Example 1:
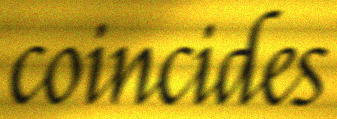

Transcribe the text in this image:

coincides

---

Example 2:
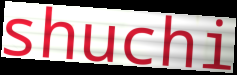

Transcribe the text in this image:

shuchi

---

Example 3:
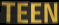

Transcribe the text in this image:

TEEN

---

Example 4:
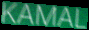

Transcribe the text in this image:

KAMAL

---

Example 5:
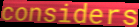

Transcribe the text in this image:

considers